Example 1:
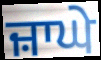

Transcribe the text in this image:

ਜ਼ਾਘੇ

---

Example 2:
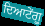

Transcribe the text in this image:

ਦਿਆਟੇਂਗੂ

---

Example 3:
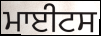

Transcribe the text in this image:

ਮਾਈਟਸ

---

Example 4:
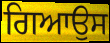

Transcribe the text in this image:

ਗਿਆਉਸ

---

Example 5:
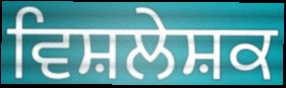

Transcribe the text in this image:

ਵਿਸ਼ਲੇਸ਼ਕ